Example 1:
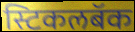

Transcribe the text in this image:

स्टिकलबॅक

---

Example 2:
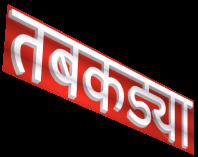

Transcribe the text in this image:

तबकड्या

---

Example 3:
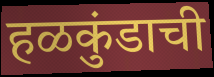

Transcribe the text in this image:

हळकुंडाची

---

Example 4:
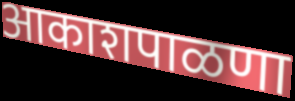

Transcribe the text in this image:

आकाशपाळणा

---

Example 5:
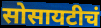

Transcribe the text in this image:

सोसायटीचं